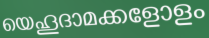
യെഹൂദാമക്കളോളം